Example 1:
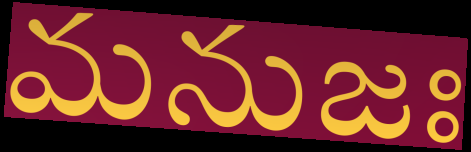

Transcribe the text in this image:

మనుజః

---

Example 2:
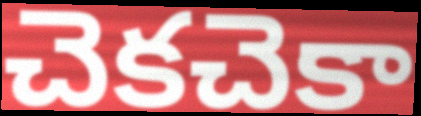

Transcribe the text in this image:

చెకచెకా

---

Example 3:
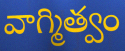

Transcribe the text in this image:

వాగ్మిత్వం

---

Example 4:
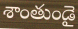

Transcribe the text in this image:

శాంతుండై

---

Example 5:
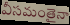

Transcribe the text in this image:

వీసమంతైనా